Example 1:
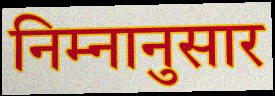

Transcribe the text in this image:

निम्‍नानुसार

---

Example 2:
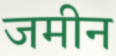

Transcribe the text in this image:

जमीन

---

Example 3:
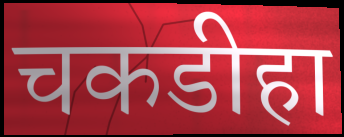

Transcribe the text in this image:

चकडीहा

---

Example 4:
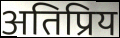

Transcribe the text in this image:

अतिप्रिय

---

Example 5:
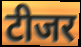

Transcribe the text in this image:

टीजर